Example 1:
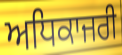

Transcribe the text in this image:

ਅਧਿਕਾਜਰੀ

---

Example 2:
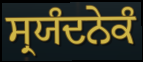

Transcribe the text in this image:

ਸ੍ਰਯੰਦਨੇਕੰ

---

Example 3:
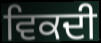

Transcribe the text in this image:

ਵਿਕਦੀ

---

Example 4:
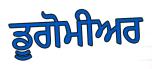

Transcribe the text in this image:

ਡੂਗੋਮੀਅਰ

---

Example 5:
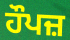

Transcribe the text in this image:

ਹੌਪਜ਼